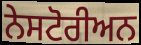
ਨੇਸਟੋਰੀਅਨ